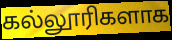
கல்லூரிகளாக